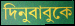
দিনুবাবুকে